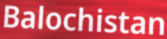
Balochistan